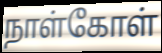
நாள்கோள்